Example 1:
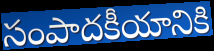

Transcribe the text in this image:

సంపాదకీయానికి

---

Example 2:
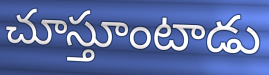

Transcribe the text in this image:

చూస్తూంటాడు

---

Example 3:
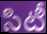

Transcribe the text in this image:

సిటీ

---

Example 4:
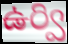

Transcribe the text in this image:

ఉర్వి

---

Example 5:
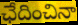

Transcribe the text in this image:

ఛేదించినా